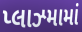
પ્લાઝ્મામાં